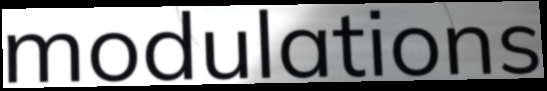
modulations